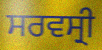
ਸਰਵਸ੍ਰੀ